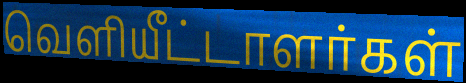
வெளியீட்டாளர்கள்